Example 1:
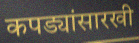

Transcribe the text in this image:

कपड्यांसारखी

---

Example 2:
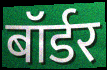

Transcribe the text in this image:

बॉर्डर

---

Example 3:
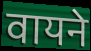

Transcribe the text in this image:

वायने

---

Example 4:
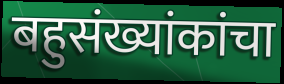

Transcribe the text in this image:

बहुसंख्यांकांचा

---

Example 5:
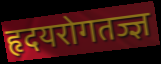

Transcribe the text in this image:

हृदयरोगतज्ज्ञ